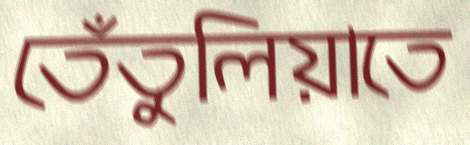
তেঁতুলিয়াতে